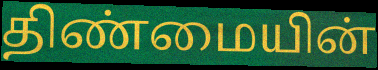
திண்மையின்